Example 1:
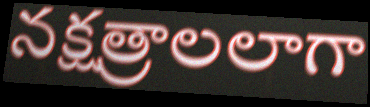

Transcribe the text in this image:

నక్షత్రాలలాగా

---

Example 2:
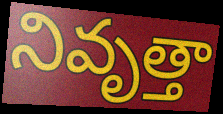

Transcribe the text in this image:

నివృత్తా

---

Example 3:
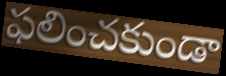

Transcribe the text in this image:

ఫలించకుండా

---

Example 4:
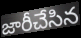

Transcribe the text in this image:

జారీచేసిన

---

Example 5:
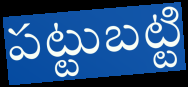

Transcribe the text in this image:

పట్టుబట్టి